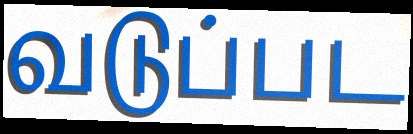
வடுப்பட